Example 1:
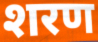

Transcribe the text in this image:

शरण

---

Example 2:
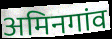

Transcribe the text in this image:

अमिनगांव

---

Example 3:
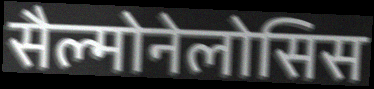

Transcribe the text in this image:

सैल्मोनेलोसिस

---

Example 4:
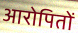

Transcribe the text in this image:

आरोपितों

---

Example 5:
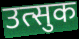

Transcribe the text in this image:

उत्‍सुक